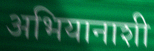
अभियानाशी